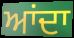
ਆਂਦਾ